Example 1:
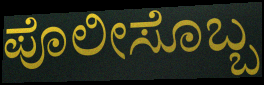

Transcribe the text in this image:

ಪೊಲೀಸೊಬ್ಬ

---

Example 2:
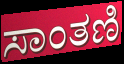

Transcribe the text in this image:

ಸಾಂತಣಿ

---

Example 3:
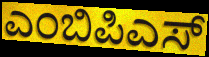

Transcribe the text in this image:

ಎಂಬಿಪಿಎಸ್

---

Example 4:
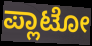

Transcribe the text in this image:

ಪ್ಲಾಟೋ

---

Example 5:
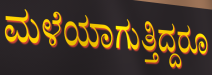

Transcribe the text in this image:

ಮಳೆಯಾಗುತ್ತಿದ್ದರೂ